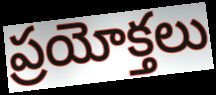
ప్రయోక్తలు